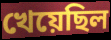
খেয়েছিল